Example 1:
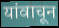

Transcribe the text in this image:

यांवाचून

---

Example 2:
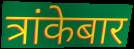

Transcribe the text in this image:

त्रांकेबार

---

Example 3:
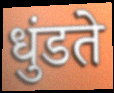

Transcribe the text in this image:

धुंडते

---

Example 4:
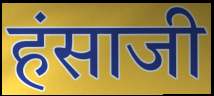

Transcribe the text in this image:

हंसाजी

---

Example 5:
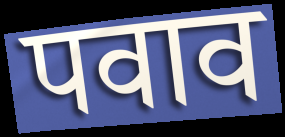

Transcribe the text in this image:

पवाव